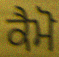
ਕੈਮੋ